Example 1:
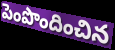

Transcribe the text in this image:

పెంపొందించిన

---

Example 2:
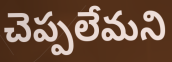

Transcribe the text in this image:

చెప్పలేమని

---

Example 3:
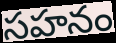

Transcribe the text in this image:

సహనం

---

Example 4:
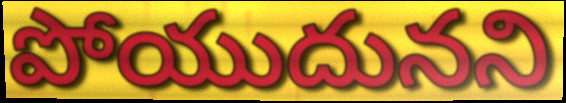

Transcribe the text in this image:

పోయుదునని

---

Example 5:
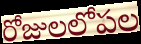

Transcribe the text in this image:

రోజులలోపల